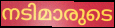
നടിമാരുടെ